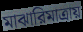
মাঝারিমাত্রায়